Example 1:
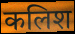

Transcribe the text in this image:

कलिश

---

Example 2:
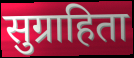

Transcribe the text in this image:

सुग्राहिता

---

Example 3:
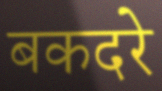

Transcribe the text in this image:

बकदरे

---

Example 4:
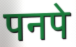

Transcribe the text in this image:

पनपे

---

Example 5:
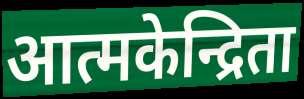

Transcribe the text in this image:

आत्मकेन्द्रिता